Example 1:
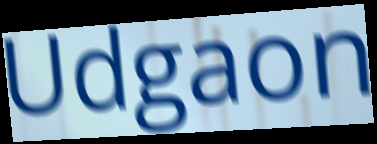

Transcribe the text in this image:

Udgaon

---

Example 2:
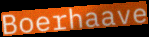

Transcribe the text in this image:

Boerhaave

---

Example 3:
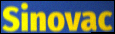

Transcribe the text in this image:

Sinovac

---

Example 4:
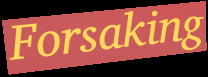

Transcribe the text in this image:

Forsaking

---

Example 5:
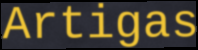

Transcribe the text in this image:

Artigas